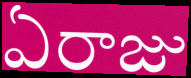
ఏరాజు